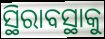
ସ୍ଥିରାବସ୍ଥାକୁ